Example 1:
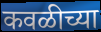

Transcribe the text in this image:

कवळीच्या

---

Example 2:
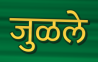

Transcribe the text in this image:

जुळले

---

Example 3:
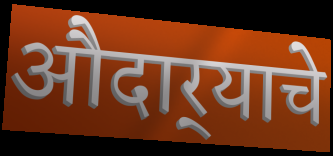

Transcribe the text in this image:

औदार्याचे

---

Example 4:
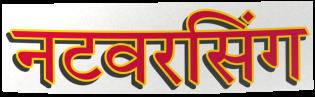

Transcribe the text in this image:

नटवरसिंग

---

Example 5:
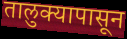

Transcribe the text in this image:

तालुक्यापासून